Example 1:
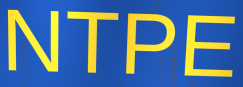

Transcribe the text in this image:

NTPE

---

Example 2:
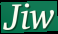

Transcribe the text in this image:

Jiw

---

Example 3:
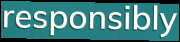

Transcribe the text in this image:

responsibly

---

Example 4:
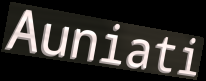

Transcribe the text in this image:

Auniati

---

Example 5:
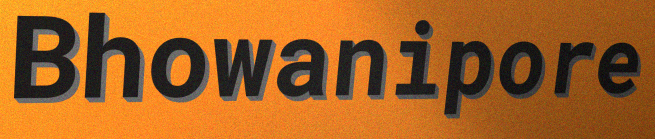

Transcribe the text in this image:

Bhowanipore